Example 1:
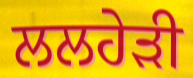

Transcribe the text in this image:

ਲਲਹੇੜੀ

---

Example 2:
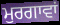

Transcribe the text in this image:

ਮੁਰਗਾਵਾਂ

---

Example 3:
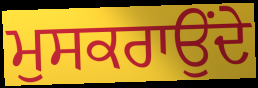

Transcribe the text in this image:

ਮੁਸਕਰਾਉਂਦੇ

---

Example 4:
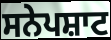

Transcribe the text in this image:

ਸਨੇਪਸ਼ਾਟ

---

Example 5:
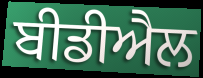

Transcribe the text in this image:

ਬੀਡੀਐਲ